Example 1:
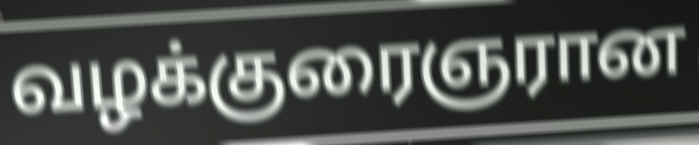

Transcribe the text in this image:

வழக்குரைஞரான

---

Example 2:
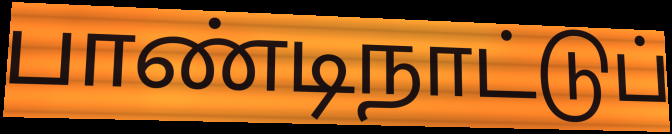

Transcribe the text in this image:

பாண்டிநாட்டுப்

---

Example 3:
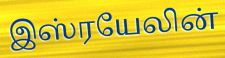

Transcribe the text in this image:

இஸ்ரயேலின்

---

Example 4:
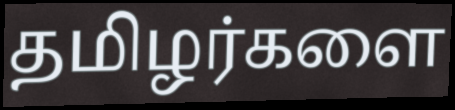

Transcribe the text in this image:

தமிழர்களை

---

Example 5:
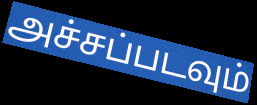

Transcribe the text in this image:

அச்சப்படவும்